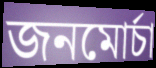
জনমোর্চা